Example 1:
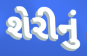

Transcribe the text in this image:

શેરીનું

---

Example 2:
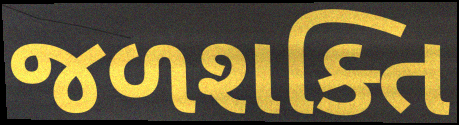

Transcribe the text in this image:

જળશક્તિ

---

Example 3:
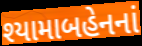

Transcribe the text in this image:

શ્યામાબહેનનાં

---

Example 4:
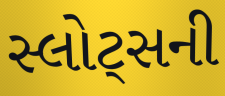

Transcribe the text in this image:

સ્લોટ્સની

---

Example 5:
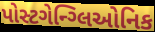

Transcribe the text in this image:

પોસ્ટગેન્ગ્લિઓનિક